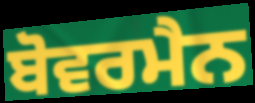
ਬੋਵਰਮੈਨ